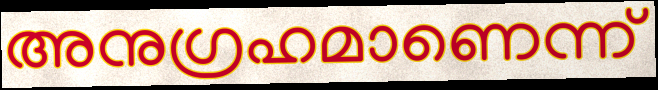
അനുഗ്രഹമാണെന്ന്